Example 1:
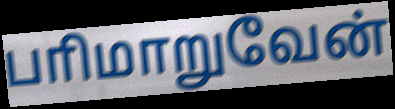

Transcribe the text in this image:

பரிமாறுவேன்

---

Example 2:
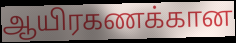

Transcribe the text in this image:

ஆயிரகணக்கான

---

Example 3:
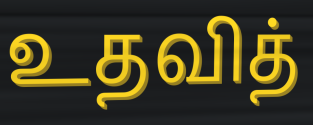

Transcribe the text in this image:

உதவித்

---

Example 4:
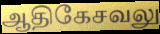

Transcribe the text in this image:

ஆதிகேசவலு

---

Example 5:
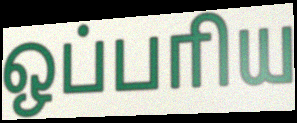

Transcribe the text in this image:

ஒப்பரிய